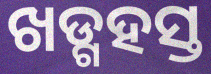
ଖଡ୍ଗହସ୍ତ